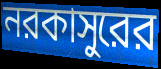
নরকাসুরের